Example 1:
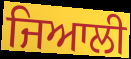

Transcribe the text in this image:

ਜਿਆਲੀ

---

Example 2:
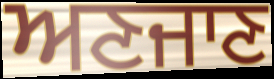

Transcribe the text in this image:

ਅਣਜਾਣ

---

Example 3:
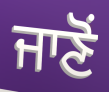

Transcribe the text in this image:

ਜਾਣੋਂ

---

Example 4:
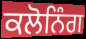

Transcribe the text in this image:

ਕਲੋਨਿੰਗ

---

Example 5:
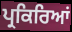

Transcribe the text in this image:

ਪ੍ਰਕਿਰਿਆਂ